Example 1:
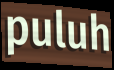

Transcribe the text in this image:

puluh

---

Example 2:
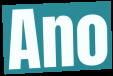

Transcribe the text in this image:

Ano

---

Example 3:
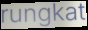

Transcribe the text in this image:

rungkat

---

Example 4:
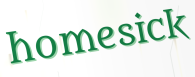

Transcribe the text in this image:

homesick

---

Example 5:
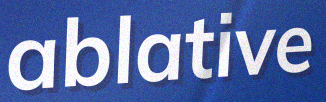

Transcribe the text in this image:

ablative